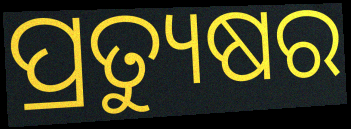
ପ୍ରତ୍ୟୁଷର